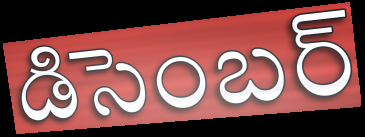
డిసెంబర్